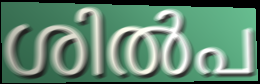
ശിൽപ